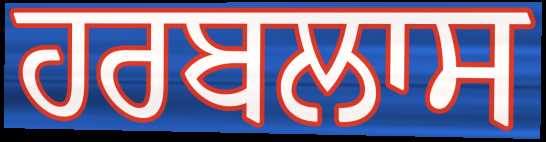
ਹਰਬਲਾਸ